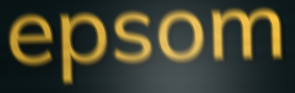
epsom